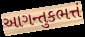
આગન્તુકભત્તં